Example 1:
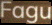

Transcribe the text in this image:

Fagu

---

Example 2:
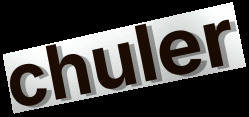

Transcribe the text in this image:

chuler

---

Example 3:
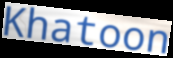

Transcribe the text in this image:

Khatoon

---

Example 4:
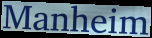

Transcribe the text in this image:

Manheim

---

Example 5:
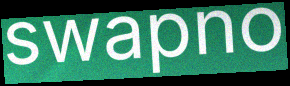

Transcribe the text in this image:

swapno